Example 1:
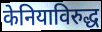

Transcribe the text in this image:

केनियाविरुद्ध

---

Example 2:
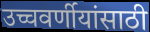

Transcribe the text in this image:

उच्चवर्णीयांसाठी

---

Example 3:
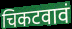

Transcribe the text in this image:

चिकटवावं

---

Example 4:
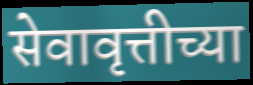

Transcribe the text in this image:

सेवावृत्तीच्या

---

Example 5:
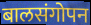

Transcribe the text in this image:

बालसंगोपन